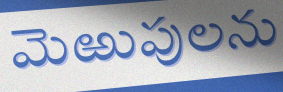
మెఱుపులను